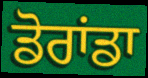
ਡੋਰਾਂਡਾ